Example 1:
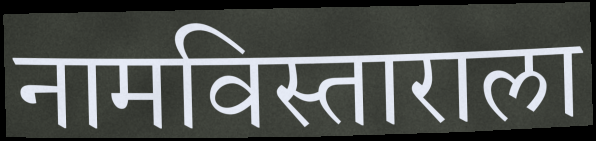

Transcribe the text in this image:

नामविस्ताराला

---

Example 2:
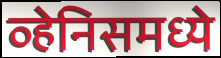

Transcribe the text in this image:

व्हेनिसमध्ये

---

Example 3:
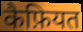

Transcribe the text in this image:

कैफ़ियत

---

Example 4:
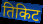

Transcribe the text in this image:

तिकिट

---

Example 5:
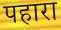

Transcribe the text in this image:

पहारा